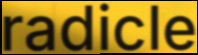
radicle